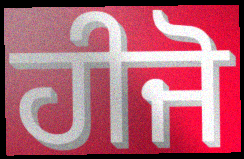
ਹੀਜੋ